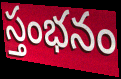
స్తంభనం